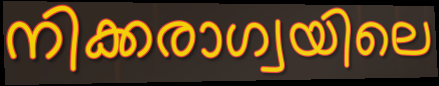
നിക്കരാഗ്വയിലെ